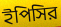
ইপিসির